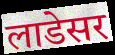
लाडेसर